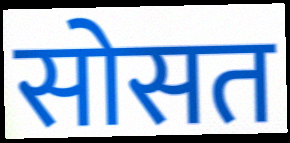
सोसत